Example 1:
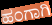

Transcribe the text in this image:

ಹಂಗಾಗಿ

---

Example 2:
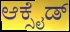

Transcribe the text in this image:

ಆಕ್ಸೈಡ್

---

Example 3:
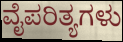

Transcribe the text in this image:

ವೈಪರಿತ್ಯಗಳು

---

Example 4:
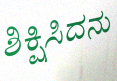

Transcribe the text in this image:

ಶಿಕ್ಷಿಸಿದನು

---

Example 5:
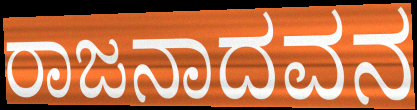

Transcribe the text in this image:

ರಾಜನಾದವನ